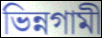
ভিন্নগামী